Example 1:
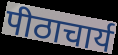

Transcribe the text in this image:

पीठाचार्य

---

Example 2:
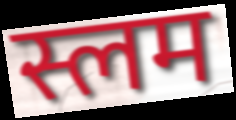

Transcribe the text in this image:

स्लम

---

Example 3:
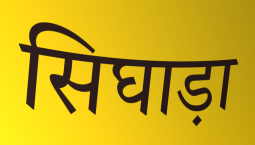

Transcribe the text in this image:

सिघाड़ा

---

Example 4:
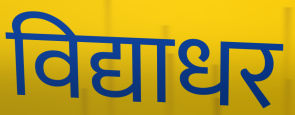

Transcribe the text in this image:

विद्याधर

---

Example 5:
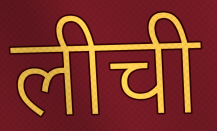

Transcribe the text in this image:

लीची